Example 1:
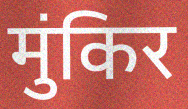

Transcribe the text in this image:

मुंकिर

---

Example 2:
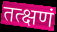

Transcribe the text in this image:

तत्क्षणं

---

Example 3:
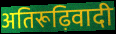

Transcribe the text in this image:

अतिरूढ़िवादी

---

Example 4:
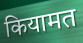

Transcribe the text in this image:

कियामत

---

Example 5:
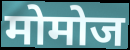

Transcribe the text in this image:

मोमोज